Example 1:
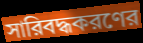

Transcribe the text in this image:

সারিবদ্ধকরণের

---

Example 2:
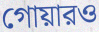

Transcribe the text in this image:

গোয়ারও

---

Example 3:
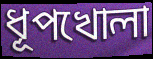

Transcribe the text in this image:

ধূপখোলা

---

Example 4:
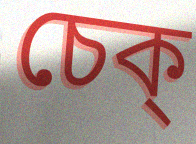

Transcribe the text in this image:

চেক্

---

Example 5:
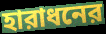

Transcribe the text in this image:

হারাধনের